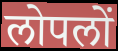
लोपलों